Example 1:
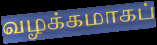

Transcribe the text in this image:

வழக்கமாகப்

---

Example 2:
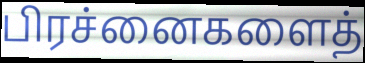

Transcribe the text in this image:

பிரச்னைகளைத்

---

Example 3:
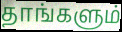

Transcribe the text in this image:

தாங்களும்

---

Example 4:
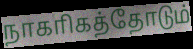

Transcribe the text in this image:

நாகரிகத்தோடும்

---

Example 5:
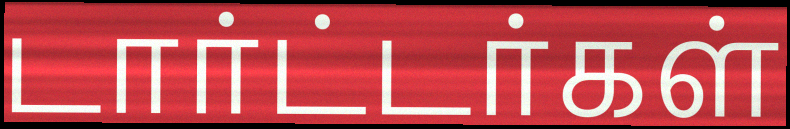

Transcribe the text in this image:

டார்ட்டர்கள்